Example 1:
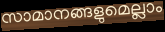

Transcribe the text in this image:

സാമാനങ്ങളുമെല്ലാം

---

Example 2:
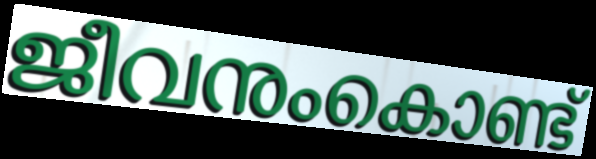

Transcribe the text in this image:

ജീവനുംകൊണ്ട്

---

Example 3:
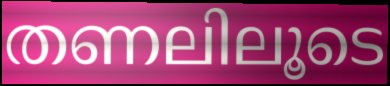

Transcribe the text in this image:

തണലിലൂടെ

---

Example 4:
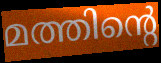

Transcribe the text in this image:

മത്തിന്റെ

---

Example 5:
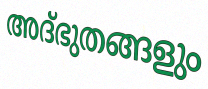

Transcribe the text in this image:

അദ്ഭുതങ്ങളും